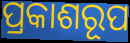
ପ୍ରକାଶରୂପ